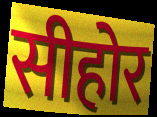
सीहोर